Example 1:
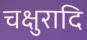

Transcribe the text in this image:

चक्षुरादि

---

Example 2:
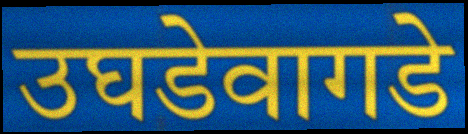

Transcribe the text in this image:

उघडेवागडे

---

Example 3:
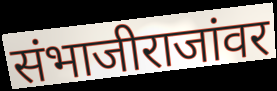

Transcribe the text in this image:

संभाजीराजांवर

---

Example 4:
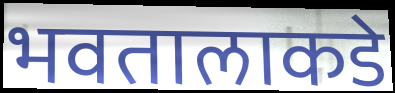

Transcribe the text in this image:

भवतालाकडे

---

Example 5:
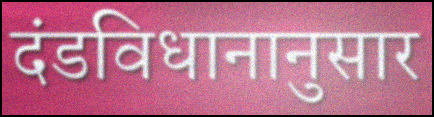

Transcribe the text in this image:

दंडविधानानुसार